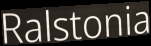
Ralstonia